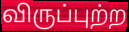
விருப்புற்ற